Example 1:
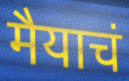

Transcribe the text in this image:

मैयाचं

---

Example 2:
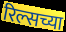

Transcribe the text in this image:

रिल्सच्या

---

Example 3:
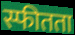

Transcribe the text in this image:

स्फीतता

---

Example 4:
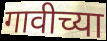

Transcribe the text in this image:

गावीच्या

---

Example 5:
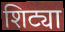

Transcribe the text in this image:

शिट्या